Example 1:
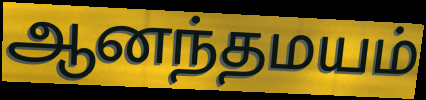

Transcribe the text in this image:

ஆனந்தமயம்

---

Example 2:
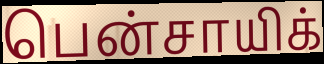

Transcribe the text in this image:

பென்சாயிக்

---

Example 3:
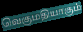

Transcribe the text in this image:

வெகுமதியாகும்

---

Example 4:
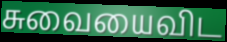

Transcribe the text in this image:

சுவையைவிட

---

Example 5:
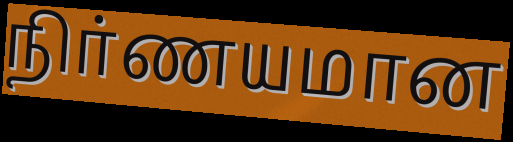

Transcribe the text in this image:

நிர்ணயமான